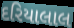
દરિયાલાલ